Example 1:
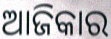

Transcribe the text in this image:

ଆଜିକାର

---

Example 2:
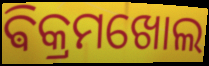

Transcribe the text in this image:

ଵିକ୍ରମଖୋଲ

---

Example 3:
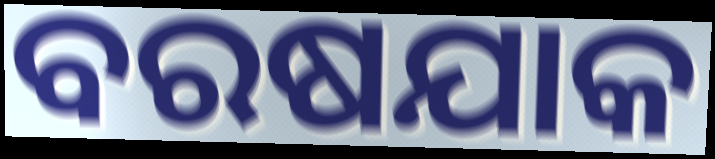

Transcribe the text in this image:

ବରଷଯାକ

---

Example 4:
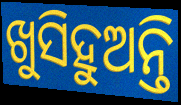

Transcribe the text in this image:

ଖୁସିହୁଅନ୍ତି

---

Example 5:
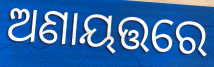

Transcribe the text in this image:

ଅଣାୟତ୍ତରେ